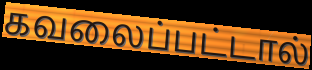
கவலைப்பட்டால்